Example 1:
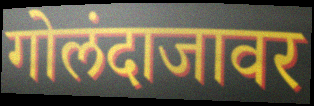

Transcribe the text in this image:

गोलंदाजावर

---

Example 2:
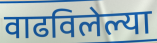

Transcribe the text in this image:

वाढविलेल्या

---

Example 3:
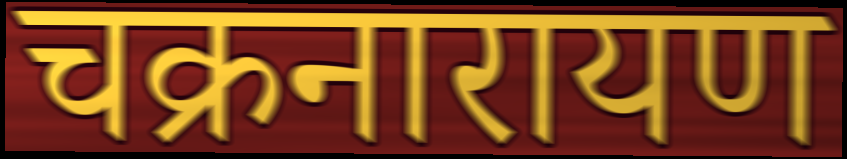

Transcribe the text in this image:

चक्रनारायण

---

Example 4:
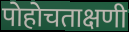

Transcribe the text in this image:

पोहोचताक्षणी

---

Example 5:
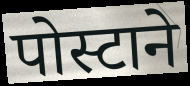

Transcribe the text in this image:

पोस्टाने